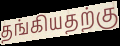
தங்கியதற்கு